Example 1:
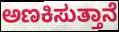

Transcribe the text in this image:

ಅಣಕಿಸುತ್ತಾನೆ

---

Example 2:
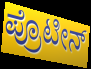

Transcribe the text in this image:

ಪ್ರೊಟೀನ್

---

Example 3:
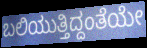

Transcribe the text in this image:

ಬಲಿಯುತ್ತಿದ್ದಂತೆಯೇ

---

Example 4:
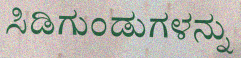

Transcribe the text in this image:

ಸಿಡಿಗುಂಡುಗಳನ್ನು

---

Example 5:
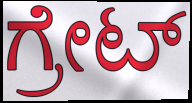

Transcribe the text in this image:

ಗ್ರೇಟ್